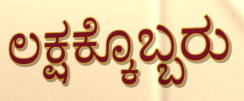
ಲಕ್ಷಕ್ಕೊಬ್ಬರು